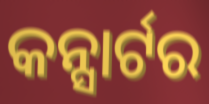
କନ୍ସାର୍ଟର